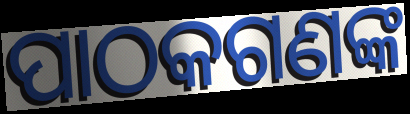
ପାଠକଗଣଙ୍କ